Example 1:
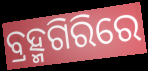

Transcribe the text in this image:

ବ୍ରହ୍ମଗିରିରେ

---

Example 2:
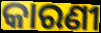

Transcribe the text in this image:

କାରଣୀ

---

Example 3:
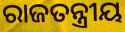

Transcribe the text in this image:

ରାଜତନ୍ତ୍ରୀୟ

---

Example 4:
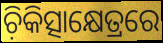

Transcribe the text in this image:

ଚ଼ିକିତ୍ସାକ୍ଷେତ୍ରରେ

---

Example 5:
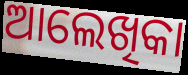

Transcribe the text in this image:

ଆଲେଖିକା